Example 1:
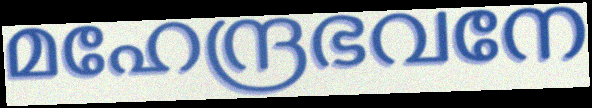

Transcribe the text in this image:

മഹേന്ദ്രഭവനേ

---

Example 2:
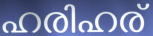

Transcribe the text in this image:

ഹരിഹര്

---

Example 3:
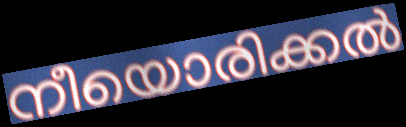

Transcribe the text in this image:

നീയൊരിക്കൽ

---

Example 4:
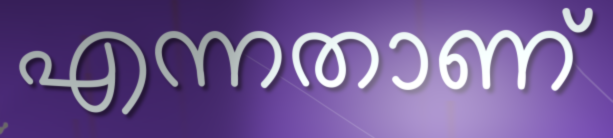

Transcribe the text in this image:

എന്നതാണ്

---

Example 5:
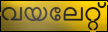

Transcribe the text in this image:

വയലേറ്റ്